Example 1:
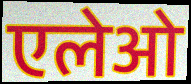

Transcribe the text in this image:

एलेओ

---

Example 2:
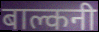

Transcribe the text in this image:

बाल्कनी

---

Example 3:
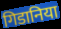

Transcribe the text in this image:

गिडानिया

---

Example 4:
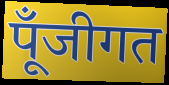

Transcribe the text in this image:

पूँजीगत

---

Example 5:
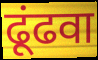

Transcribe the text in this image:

ढूंढवा